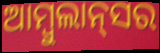
ଆମ୍ବୁଲାନ୍‌ସର